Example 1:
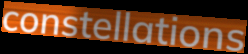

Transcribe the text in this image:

constellations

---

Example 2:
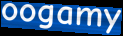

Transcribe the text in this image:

oogamy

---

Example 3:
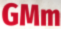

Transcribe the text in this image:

GMm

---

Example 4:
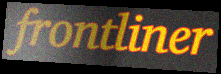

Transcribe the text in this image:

frontliner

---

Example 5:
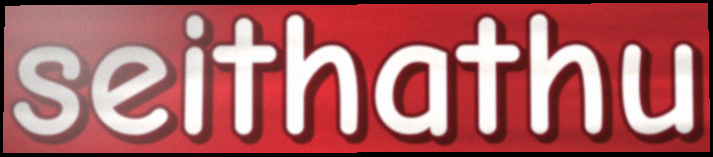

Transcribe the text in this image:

seithathu